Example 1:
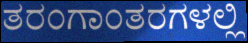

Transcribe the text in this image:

ತರಂಗಾಂತರಗಳಲ್ಲಿ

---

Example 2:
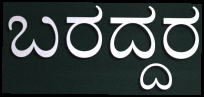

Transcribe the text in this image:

ಬರದ್ದರ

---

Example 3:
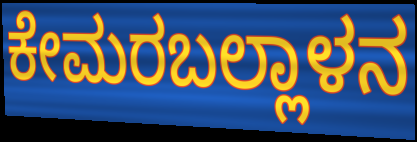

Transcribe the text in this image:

ಕೇಮರಬಲ್ಲಾಳನ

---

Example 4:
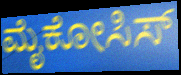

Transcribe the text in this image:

ಮೈಕೋಸಿಸ್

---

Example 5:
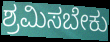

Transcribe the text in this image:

ಶ್ರಮಿಸಬೇಕು